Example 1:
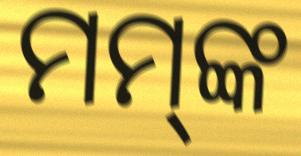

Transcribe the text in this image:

ମମ୍‍ଙ୍କ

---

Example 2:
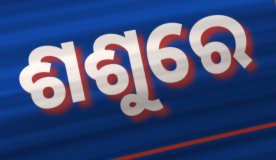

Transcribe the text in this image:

ଶଶୁରେ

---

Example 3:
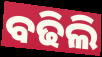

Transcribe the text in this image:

ବଢିଲି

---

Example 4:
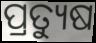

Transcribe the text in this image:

ପ୍ରତ୍ୟୁଷ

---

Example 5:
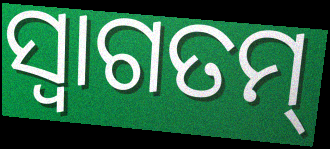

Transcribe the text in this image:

ସ୍ୱାଗତମ୍